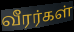
வீரர்கள்